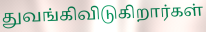
துவங்கிவிடுகிறார்கள்